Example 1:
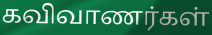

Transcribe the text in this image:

கவிவாணர்கள்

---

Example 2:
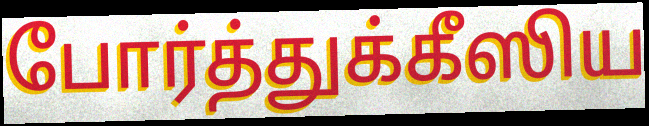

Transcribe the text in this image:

போர்த்துக்கீஸிய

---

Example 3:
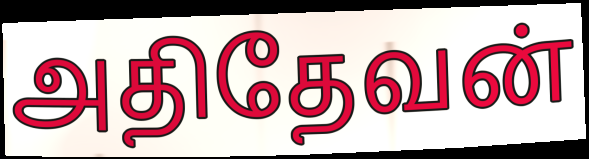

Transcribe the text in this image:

அதிதேவன்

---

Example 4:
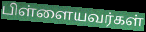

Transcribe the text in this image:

பிள்ளையவர்கள்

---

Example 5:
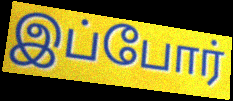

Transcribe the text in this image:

இப்போர்